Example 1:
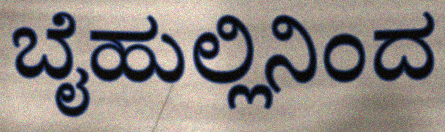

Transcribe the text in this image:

ಬೈಹುಲ್ಲಿನಿಂದ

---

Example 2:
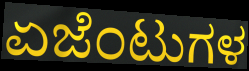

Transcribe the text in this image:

ಏಜೆಂಟುಗಳ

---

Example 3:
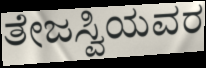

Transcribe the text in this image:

ತೇಜಸ್ವಿಯವರ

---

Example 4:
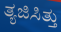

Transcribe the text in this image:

ತ್ಯಜಿಸಿತ್ತು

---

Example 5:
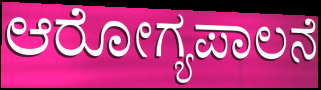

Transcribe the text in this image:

ಆರೋಗ್ಯಪಾಲನೆ